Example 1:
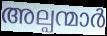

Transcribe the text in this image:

അല്പന്മാർ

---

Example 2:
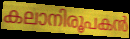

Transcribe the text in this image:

കലാനിരൂപകൻ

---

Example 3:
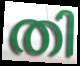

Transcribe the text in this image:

തി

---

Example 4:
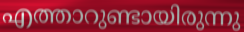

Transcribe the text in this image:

എത്താറുണ്ടായിരുന്നു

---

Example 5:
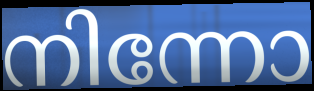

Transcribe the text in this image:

നിന്നോ